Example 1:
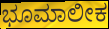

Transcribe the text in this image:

ಭೂಮಾಲೀಕ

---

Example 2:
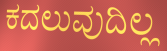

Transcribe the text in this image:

ಕದಲುವುದಿಲ್ಲ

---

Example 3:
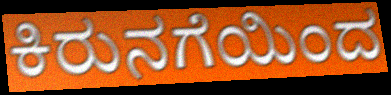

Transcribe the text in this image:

ಕಿರುನಗೆಯಿಂದ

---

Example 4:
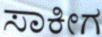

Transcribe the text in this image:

ಸಾಕೀಗ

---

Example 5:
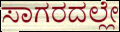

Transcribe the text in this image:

ಸಾಗರದಲ್ಲೇ